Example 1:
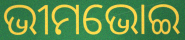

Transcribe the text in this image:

ଭୀମଭୋଇ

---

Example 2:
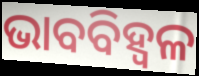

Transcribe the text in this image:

ଭାବବିହ୍ବଳ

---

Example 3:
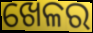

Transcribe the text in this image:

ଖେଳର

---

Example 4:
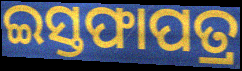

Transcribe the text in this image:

ଇସ୍ତଫାପତ୍ର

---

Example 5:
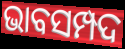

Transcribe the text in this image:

ଭାବସମ୍ପଦ